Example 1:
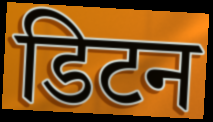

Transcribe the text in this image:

डिटन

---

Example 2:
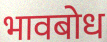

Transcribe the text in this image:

भावबोध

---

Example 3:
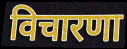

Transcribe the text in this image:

विचारणा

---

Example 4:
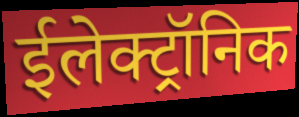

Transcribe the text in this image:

ईलेक्ट्रॉनिक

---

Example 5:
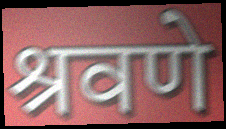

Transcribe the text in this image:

श्रवणे